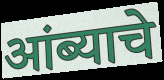
आंब्याचे